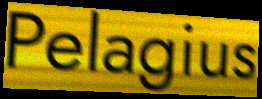
Pelagius